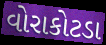
વોરાકોટડા